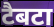
टैबटा